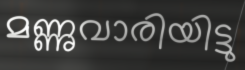
മണ്ണുവാരിയിട്ടു